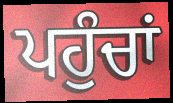
ਪਹੁੰਚਾਂ